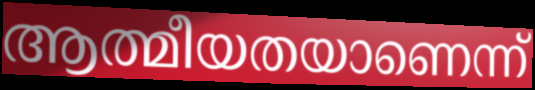
ആത്മീയതയാണെന്ന്